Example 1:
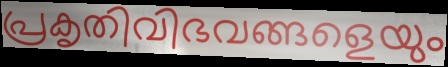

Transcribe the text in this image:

പ്രകൃതിവിഭവങ്ങളെയും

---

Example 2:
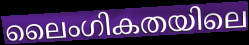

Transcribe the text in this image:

ലൈംഗികതയിലെ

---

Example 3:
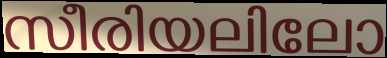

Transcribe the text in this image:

സീരിയലിലോ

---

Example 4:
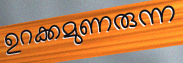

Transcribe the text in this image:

ഉറക്കമുണരുന്ന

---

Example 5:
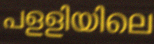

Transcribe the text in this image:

പളളിയിലെ